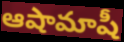
ఆషామాషీ